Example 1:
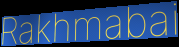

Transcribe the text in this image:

Rakhmabai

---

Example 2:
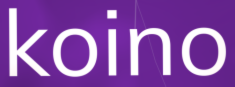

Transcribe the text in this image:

koino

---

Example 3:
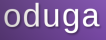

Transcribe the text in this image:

oduga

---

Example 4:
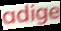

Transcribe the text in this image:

adige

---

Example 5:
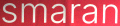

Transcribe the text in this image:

smaran